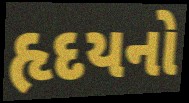
હૃદયનો